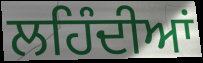
ਲਹਿੰਦੀਆਂ